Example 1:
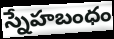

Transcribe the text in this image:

స్నేహబంధం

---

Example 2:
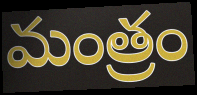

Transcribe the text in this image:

మంత్రం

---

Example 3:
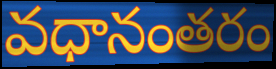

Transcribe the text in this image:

వధానంతరం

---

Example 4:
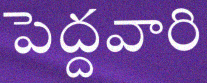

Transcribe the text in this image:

పెద్దవారి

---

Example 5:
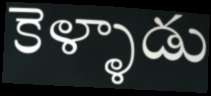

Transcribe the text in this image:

కెళ్ళాడు